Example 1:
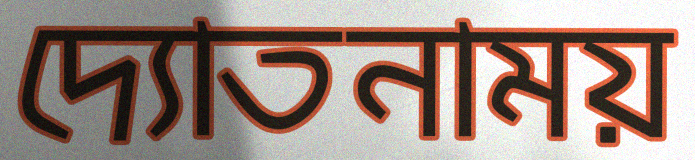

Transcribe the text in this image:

দ্যোতনাময়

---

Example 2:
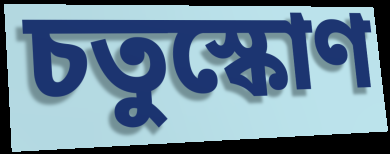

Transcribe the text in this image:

চতুস্কোণ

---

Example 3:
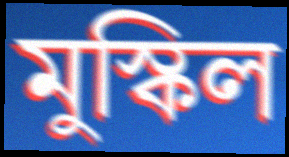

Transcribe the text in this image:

মুস্কিল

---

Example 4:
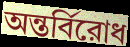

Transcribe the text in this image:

অন্তর্বিরোধ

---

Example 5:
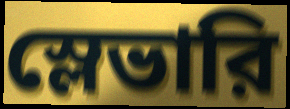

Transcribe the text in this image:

স্লেভারি